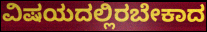
ವಿಷಯದಲ್ಲಿರಬೇಕಾದ